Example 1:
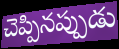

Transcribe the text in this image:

చెప్పినప్పుడు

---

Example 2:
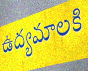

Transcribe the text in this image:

ఉద్యమాలకి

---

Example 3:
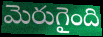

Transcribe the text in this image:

మెరుగైంది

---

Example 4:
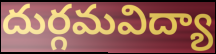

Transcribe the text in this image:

దుర్గమవిద్యా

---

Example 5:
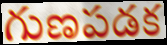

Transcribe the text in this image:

గుణపడక